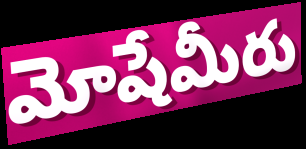
మోషేమీరు